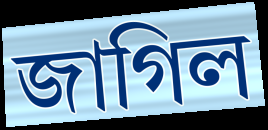
জাগিল